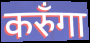
करुँगा